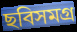
ছবিসমগ্র